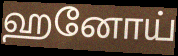
ஹனோய்